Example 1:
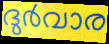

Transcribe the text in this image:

ദുർവാര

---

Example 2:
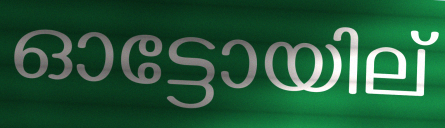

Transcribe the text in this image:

ഓട്ടോയില്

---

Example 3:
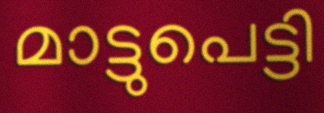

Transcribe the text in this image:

മാട്ടുപെട്ടി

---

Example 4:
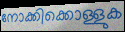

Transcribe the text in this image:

നോക്കിക്കൊള്ളുക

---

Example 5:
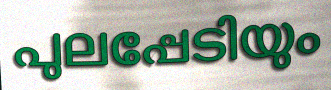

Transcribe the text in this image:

പുലപ്പേടിയും